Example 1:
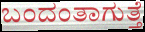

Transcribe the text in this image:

ಬಂದಂತಾಗುತ್ತೆ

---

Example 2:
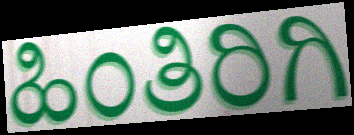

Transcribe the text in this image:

ಹಿಂತಿರಿಗಿ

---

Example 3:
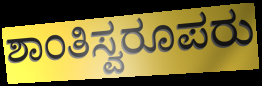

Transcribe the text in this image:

ಶಾಂತಿಸ್ವರೂಪರು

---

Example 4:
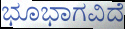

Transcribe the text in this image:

ಭೂಭಾಗವಿದೆ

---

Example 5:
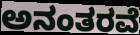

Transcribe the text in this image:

ಅನಂತರವೆ